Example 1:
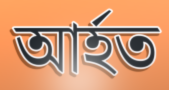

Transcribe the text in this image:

আর্হত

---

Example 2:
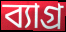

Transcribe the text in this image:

ব্যাগ্র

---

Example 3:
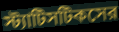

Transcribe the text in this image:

স্ট্যাটিসটিকসের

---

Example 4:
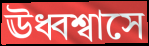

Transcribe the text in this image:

ঊধ্বশ্বাসে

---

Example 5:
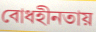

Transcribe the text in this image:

বোধহীনতায়